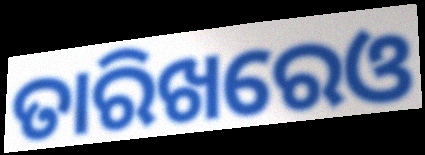
ତାରିଖରେଓ